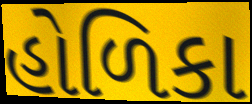
હોળિકા